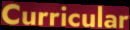
Curricular